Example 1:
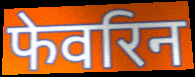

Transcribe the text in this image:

फेवरिन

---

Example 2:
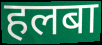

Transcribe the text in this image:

हलबा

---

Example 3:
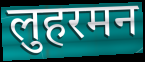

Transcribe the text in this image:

लुहरमन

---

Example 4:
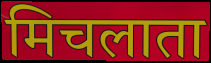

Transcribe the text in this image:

मिचलाता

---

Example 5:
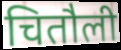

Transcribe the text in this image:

चितौली